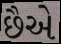
છૈએ